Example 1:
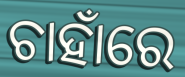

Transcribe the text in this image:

ଚାହାଁରେ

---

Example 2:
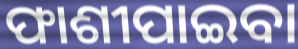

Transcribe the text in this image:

ଫାଶୀପାଇବା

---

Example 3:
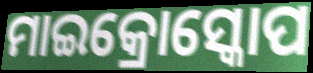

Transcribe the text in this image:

ମାଇକ୍ରୋସ୍କୋପ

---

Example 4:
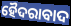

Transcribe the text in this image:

ହୈଦରାବାଦ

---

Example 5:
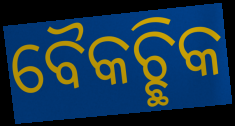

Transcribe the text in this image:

ବୈକଚ୍ଛିକ